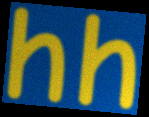
hh